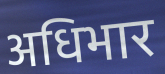
अधिभार